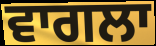
ਵਾਗਲਾ